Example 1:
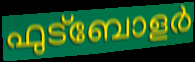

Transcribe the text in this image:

ഫുട്ബോളർ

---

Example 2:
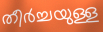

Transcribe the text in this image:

തീർച്ചയുള്ള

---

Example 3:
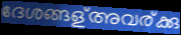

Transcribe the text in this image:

ദേശങ്ങള്അവര്ക്കു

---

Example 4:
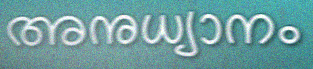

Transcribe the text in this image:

അനുധ്യാനം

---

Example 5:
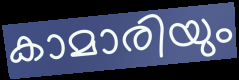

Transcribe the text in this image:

കാമാരിയും